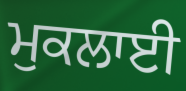
ਮੁਕਲਾਈ